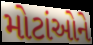
મોટાંઓને